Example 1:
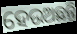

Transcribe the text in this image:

ହେଉଅଛନ୍ତି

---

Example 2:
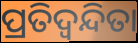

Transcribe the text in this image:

ପ୍ରତିଦ୍ୱନ୍ଦିତା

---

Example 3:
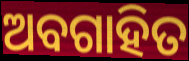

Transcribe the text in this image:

ଅବଗାହିତ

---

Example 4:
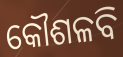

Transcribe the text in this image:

କୌଶଳବି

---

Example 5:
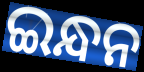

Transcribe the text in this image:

ଇନ୍ଧନ